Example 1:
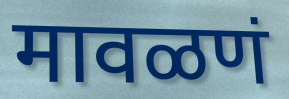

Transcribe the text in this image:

मावळणं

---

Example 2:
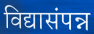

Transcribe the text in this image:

विद्यासंपन्न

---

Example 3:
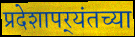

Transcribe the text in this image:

प्रदेशापर्यंतच्या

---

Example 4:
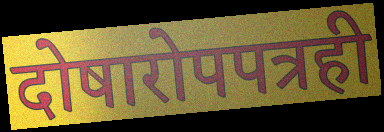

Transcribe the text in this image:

दोषारोपपत्रही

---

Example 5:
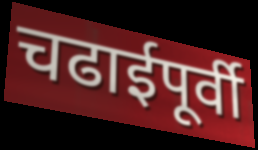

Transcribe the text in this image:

चढाईपूर्वी